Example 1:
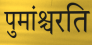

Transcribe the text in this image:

पुमांश्चरति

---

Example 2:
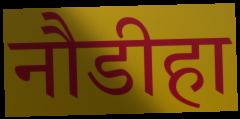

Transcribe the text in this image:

नौडीहा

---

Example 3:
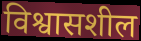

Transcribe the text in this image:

विश्वासशील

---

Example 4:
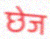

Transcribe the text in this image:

छेज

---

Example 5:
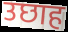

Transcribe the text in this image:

उछाह